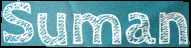
Suman